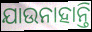
ଯାଉନାହାନ୍ତି